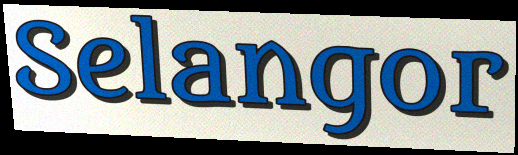
Selangor